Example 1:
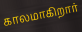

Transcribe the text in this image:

காலமாகிறார்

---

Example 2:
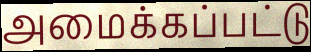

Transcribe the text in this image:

அமைக்கப்பட்டு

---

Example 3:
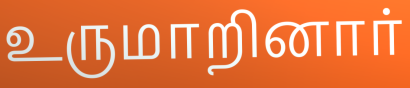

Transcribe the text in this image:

உருமாறினார்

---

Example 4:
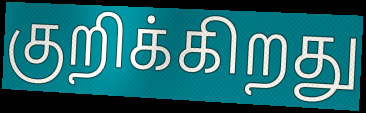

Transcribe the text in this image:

குறிக்கிறது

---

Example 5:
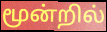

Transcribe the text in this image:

மூன்றில்